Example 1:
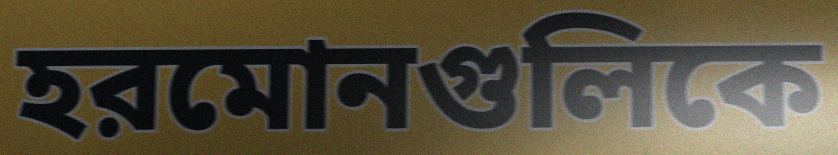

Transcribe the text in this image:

হরমোনগুলিকে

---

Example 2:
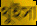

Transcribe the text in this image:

থুইসা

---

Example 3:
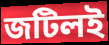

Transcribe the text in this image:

জটিলই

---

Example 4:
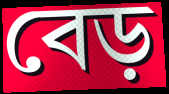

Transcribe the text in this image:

বেড়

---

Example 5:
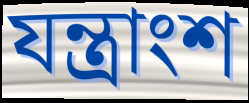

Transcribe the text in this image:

যন্ত্রাংশ